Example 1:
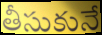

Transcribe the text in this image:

తీసుకునే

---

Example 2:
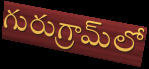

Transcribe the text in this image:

గురుగ్రామ్‌లో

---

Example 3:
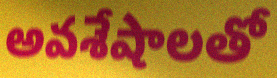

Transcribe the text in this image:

అవశేషాలతో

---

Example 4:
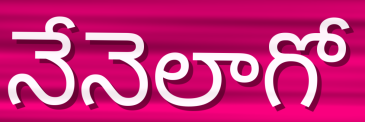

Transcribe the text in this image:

నేనెలాగో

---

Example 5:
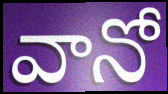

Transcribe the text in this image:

వానో